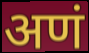
अणं